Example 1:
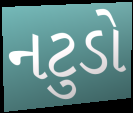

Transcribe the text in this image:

નટુડો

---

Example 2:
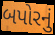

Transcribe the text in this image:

બપોરનું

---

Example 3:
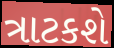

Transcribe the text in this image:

ત્રાટકશે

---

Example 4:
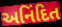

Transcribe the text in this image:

અનિંદિત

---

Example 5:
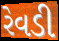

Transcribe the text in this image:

રેવડી